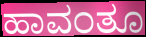
ಹಾವಂತೂ